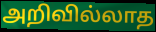
அறிவில்லாத